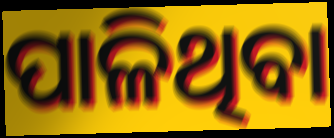
ପାଳିଥିବା